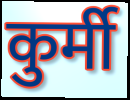
कुर्मी